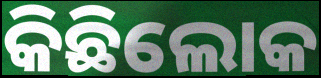
କିଛିଲୋକ